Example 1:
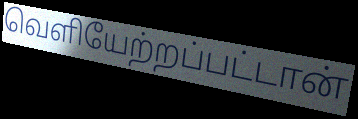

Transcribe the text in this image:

வெளியேற்றப்பட்டான்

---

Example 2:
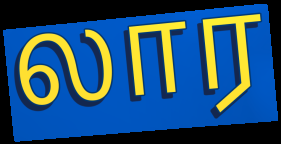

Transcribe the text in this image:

லார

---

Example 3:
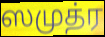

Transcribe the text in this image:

ஸமுத்ர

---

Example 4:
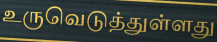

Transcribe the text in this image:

உருவெடுத்துள்ளது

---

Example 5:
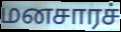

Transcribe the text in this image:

மனசாரச்